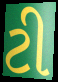
ટી